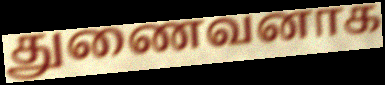
துணைவனாக